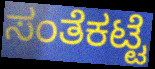
ಸಂತೆಕಟ್ಟೆ